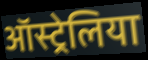
ऑस्ट्रेलिया